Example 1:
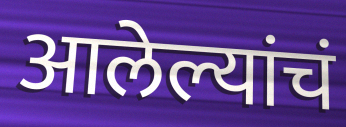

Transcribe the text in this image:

आलेल्यांचं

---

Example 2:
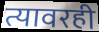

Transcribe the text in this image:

त्यावरही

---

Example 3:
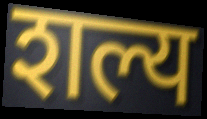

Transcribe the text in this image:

शल्‍य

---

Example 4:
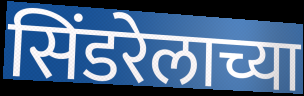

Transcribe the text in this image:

सिंडरेलाच्या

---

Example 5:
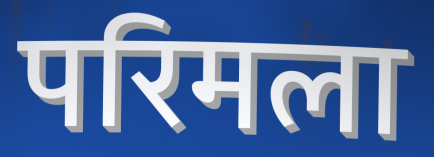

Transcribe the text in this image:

परिमला